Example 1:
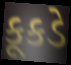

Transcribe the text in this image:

કૂકડે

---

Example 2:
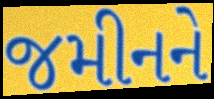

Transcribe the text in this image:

જમીનને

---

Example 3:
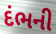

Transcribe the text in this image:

દંભની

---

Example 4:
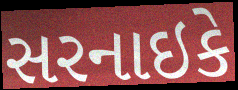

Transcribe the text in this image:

સરનાઇકે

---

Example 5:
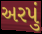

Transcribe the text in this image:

અરપું